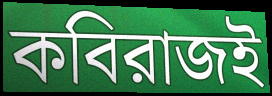
কবিরাজই